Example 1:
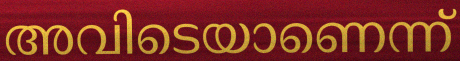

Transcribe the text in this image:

അവിടെയാണെന്ന്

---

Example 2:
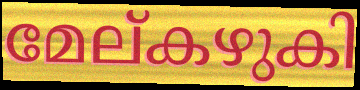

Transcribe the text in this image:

മേല്കഴുകി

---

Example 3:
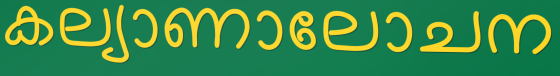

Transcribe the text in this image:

കല്യാണാലോചന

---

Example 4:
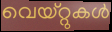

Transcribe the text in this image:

വെയ്റ്റുകൾ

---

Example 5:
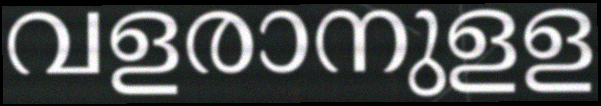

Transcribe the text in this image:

വളരാനുളള